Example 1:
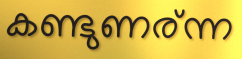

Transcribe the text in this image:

കണ്ടുണര്ന്ന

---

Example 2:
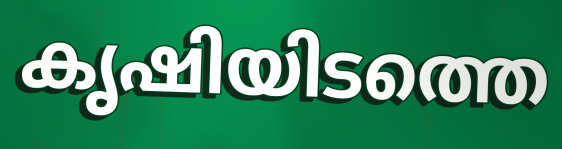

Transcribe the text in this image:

കൃഷിയിടത്തെ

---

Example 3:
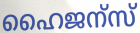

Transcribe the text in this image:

ഹൈജന്സ്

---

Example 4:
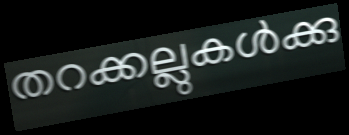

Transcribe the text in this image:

തറക്കല്ലുകൾക്കു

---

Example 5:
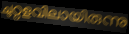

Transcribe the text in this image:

ചുറ്റളവിലായിരുന്നു